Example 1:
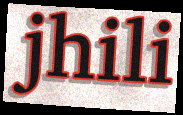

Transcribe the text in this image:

jhili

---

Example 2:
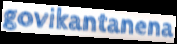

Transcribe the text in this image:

govikantanena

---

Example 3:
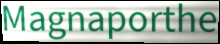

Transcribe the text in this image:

Magnaporthe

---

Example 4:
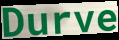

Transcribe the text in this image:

Durve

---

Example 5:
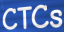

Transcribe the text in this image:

CTCs